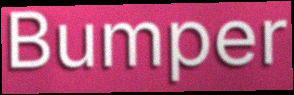
Bumper